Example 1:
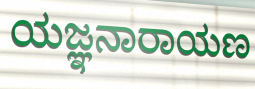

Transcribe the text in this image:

ಯಜ್ಞನಾರಾಯಣ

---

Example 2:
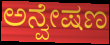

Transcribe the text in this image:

ಅನ್ವೇಷಣ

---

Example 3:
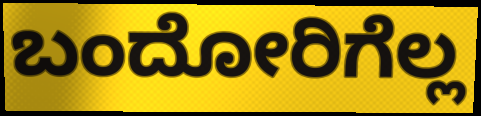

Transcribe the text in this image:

ಬಂದೋರಿಗೆಲ್ಲ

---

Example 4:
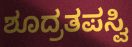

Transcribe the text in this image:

ಶೂದ್ರತಪಸ್ವಿ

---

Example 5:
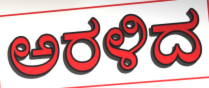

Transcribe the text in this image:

ಅರಳಿದ